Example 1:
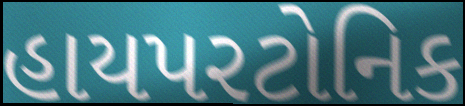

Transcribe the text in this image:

હાયપરટોનિક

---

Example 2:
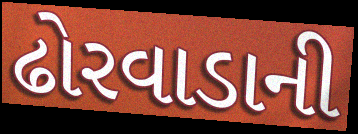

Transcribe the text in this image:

ઢોરવાડાની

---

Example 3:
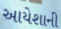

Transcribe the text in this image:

આયેશાની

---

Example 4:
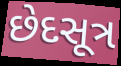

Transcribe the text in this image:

છેદસૂત્ર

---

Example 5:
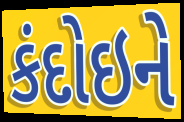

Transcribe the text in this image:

કંદોઇને